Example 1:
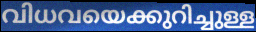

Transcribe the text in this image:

വിധവയെക്കുറിച്ചുള്ള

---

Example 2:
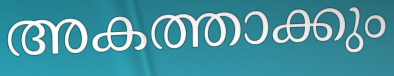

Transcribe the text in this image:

അകത്താക്കും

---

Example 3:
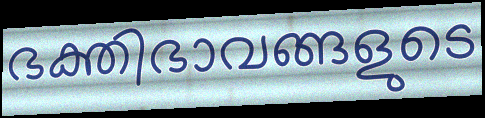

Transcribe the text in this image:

ഭക്തിഭാവങ്ങളുടെ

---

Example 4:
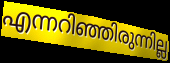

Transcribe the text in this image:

എന്നറിഞ്ഞിരുന്നില്ല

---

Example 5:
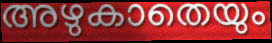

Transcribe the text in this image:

അഴുകാതെയും